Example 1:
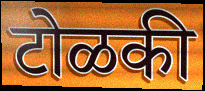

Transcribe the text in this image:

टोळकी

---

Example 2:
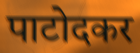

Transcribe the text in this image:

पाटोदकर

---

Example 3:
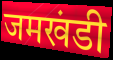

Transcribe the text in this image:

जमखंडी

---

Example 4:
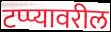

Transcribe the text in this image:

टप्प्यावरील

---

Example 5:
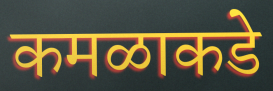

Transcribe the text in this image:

कमळाकडे